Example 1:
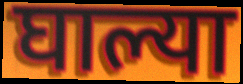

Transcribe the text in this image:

घाल्या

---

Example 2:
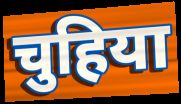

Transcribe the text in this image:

चुहिया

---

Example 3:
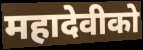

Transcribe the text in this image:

महादेवीको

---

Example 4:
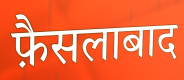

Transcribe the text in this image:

फ़ैसलाबाद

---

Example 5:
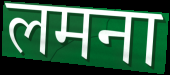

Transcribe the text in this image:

लमना